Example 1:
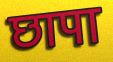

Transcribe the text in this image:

छापा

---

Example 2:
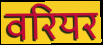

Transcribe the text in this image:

वरियर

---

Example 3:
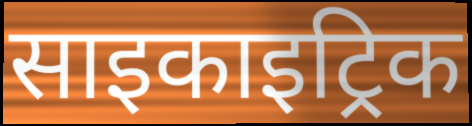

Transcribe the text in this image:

साइकाइट्रिक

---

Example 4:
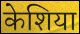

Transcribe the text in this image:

केशिया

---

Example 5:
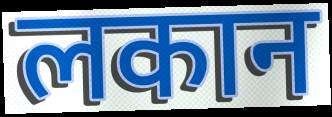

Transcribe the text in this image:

लकान